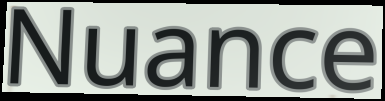
Nuance